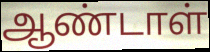
ஆண்டாள்